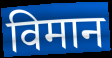
विमान